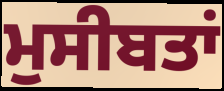
ਮੁਸੀਬਤਾਂ